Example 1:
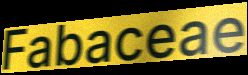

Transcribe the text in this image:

Fabaceae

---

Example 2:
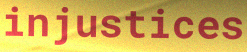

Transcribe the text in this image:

injustices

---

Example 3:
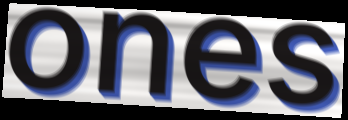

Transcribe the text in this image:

ones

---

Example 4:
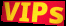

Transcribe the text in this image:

VIPs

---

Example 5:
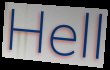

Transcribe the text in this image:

Hell